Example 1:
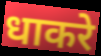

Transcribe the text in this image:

धाकरे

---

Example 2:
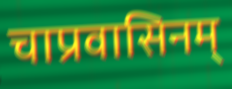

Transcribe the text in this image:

चाप्रवासिनम्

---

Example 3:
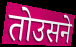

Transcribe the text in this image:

तोउसने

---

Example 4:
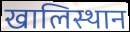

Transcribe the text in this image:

खालिस्थान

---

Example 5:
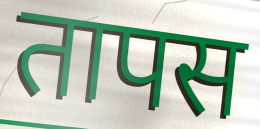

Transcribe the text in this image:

तापस